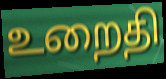
உறைதி